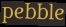
pebble